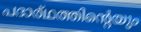
പദാര്ഥത്തിന്റെയും